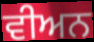
ਵੀਅਨ